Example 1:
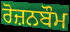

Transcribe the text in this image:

ਰੋਜ਼ਨਬੌਮ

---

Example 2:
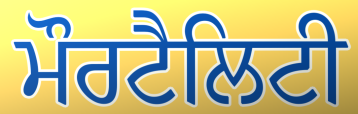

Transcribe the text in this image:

ਮੌਰਟੈਲਿਟੀ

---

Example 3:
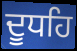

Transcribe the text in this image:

ਦੂਧਹਿ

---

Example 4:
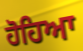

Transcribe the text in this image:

ਹੋਹਿਆ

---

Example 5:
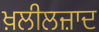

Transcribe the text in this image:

ਖ਼ਲੀਲਜ਼ਾਦ